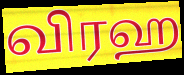
விரஹ